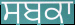
ਸਬਕਾ